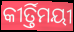
କୀର୍ତ୍ତିମୟୀ